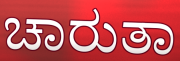
ಚಾರುತಾ